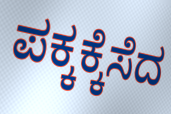
ಪಕ್ಕಕ್ಕೆಸೆದ